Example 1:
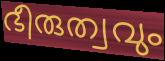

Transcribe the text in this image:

ഭീരുത്വവും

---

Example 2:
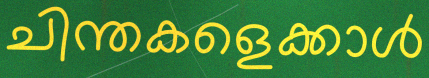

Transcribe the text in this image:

ചിന്തകളെക്കാൾ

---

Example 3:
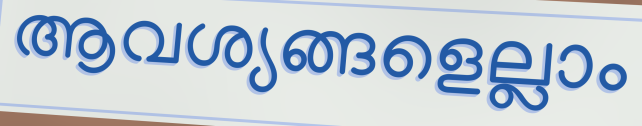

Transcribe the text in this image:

ആവശ്യങ്ങളെല്ലാം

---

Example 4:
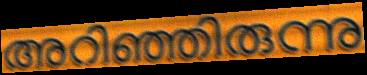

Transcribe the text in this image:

അറിഞ്ഞിരുന്നു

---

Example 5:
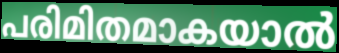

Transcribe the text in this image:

പരിമിതമാകയാൽ